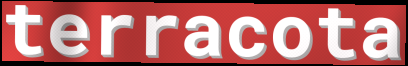
terracota